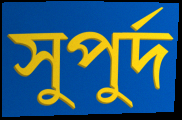
সুপুর্দ